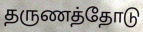
தருணத்தோடு